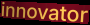
innovator